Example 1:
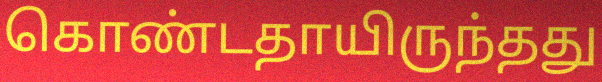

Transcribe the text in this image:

கொண்டதாயிருந்தது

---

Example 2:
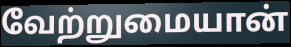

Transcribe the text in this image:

வேற்றுமையான்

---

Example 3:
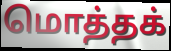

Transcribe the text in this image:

மொத்தக்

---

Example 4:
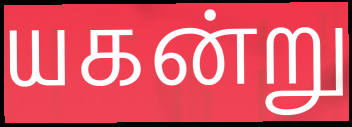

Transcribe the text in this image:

யகன்று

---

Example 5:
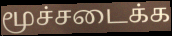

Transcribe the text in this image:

மூச்சடைக்க